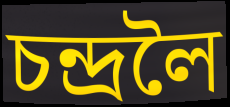
চন্দ্ৰলৈ